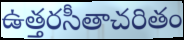
ఉత్తరసీతాచరితం